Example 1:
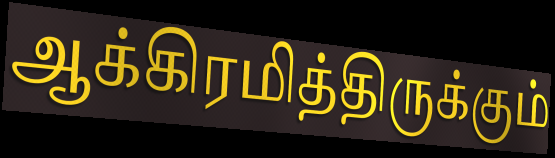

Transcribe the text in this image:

ஆக்கிரமித்திருக்கும்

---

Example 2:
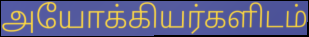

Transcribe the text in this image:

அயோக்கியர்களிடம்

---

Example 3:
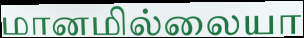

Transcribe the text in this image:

மானமில்லையா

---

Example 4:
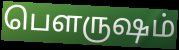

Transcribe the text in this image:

பௌருஷம்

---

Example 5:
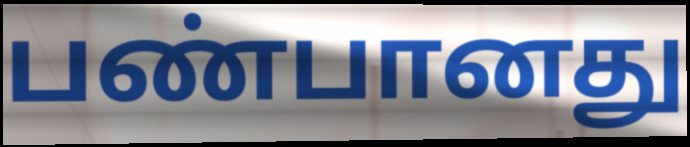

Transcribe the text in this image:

பண்பானது